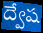
ద్వేష